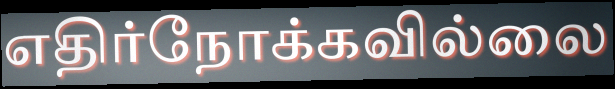
எதிர்நோக்கவில்லை